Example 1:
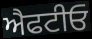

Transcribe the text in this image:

ਐਫਟੀਓ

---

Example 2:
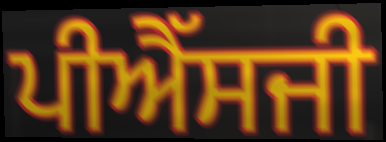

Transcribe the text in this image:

ਪੀਐੱਸਜੀ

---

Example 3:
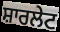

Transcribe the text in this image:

ਸ਼ਾਰਲੇਟ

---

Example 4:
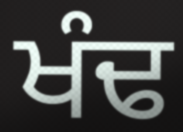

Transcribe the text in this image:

ਖੰਢ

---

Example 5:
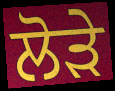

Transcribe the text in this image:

ਲੋੜੇ